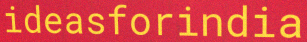
ideasforindia